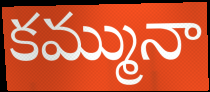
కమ్మునా